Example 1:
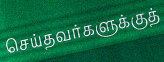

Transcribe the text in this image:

செய்தவர்களுக்குத்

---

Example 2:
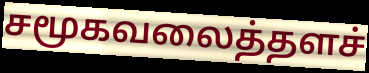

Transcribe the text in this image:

சமூகவலைத்தளச்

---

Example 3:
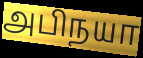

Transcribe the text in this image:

அபிநயா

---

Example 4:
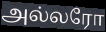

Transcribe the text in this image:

அல்லரோ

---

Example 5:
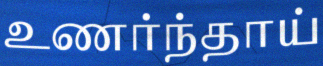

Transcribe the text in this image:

உணர்ந்தாய்